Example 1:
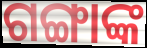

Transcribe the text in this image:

ଗଙ୍ଗାଙ୍କ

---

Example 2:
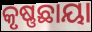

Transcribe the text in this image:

କୃଷ୍ଣଛାୟା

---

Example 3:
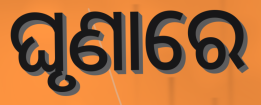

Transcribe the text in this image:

ଘୃଣାରେ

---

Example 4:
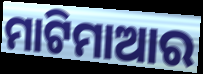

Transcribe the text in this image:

ମାଟିମାଆର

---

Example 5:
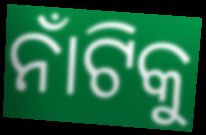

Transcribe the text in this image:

ନାଁଟିକୁ